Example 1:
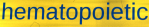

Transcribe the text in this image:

hematopoietic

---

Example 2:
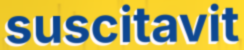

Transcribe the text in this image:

suscitavit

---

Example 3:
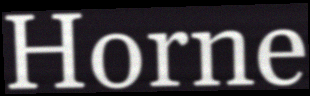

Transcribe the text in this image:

Horne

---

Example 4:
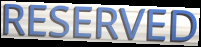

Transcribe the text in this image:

RESERVED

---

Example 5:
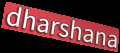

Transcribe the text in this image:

dharshana